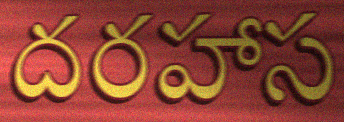
దరహాస